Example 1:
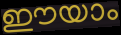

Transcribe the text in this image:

ഈയാം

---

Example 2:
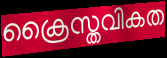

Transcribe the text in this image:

ക്രൈസ്തവികത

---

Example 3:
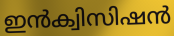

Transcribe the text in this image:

ഇൻക്വിസിഷൻ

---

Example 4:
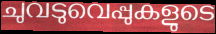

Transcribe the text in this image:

ചുവടുവെപ്പുകളുടെ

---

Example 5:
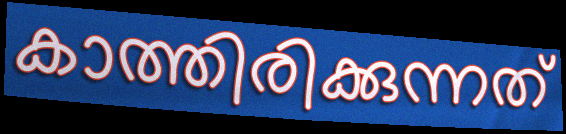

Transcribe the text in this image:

കാത്തിരിക്കുന്നത്